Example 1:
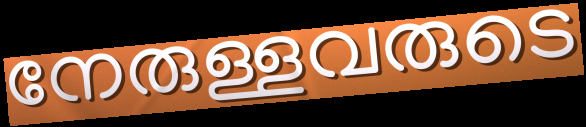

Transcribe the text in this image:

നേരുള്ളവരുടെ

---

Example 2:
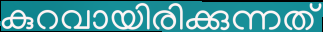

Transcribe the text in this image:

കുറവായിരിക്കുന്നത്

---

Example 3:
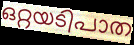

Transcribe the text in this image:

ഒറ്റയടിപാത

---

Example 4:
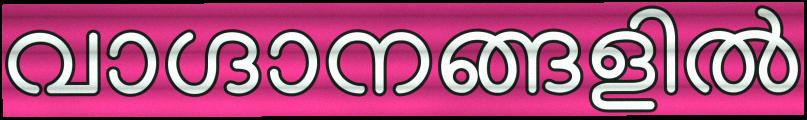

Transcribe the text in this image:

വാഗ്ദാനങ്ങളിൽ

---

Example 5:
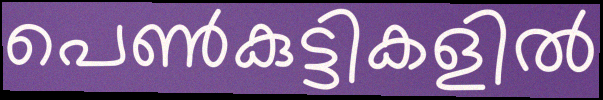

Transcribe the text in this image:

പെൺകുട്ടികളിൽ